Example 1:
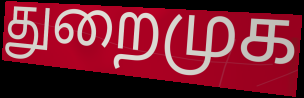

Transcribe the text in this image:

துறைமுக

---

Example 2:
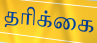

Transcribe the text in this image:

தரிக்கை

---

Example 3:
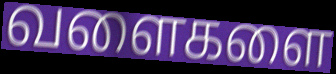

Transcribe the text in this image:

வளைகளை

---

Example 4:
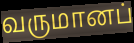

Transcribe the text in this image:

வருமானப்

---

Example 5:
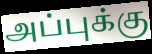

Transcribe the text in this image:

அப்புக்கு